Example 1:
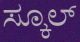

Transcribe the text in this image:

ಸ್ಕೂಲ್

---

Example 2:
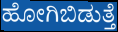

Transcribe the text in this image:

ಹೋಗಿಬಿಡುತ್ತೆ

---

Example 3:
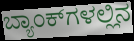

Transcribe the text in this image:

ಬ್ಯಾಂಕ್‌ಗಳಲ್ಲಿನ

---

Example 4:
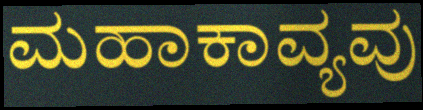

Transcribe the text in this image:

ಮಹಾಕಾವ್ಯವು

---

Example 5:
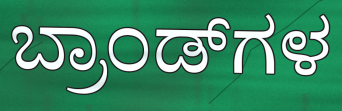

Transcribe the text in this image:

ಬ್ರಾಂಡ್‌ಗಳ